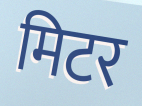
मिटर